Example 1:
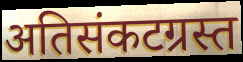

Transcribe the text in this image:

अतिसंकटग्रस्त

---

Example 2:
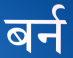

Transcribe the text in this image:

बर्न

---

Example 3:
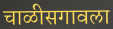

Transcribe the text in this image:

चाळीसगावला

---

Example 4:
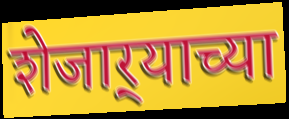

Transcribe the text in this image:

शेजार्याच्या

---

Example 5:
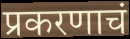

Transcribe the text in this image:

प्रकरणाचं